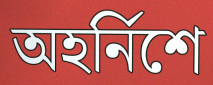
অহৰ্নিশে